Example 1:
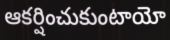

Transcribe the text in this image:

ఆకర్షించుకుంటాయో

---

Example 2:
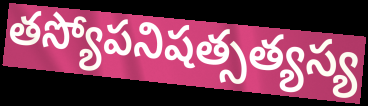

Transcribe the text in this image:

తస్యోపనిషత్సత్యస్య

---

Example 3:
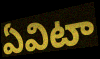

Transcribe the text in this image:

ఏవిటా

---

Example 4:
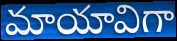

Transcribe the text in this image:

మాయావిగా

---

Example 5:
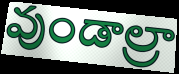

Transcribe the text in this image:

వుండాల్రా